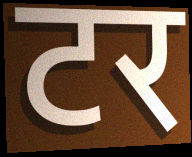
टर